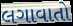
લગાવાતો